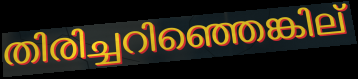
തിരിച്ചറിഞ്ഞെങ്കില്